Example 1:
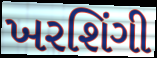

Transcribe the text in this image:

ખરશિંગી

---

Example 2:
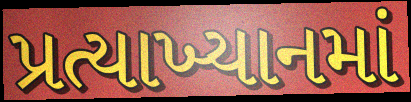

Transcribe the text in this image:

પ્રત્યાખ્યાનમાં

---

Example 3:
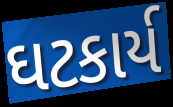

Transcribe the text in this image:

ઘટકાર્ય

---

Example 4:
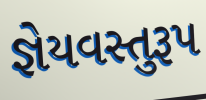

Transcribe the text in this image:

જ્ઞેયવસ્તુરૂપ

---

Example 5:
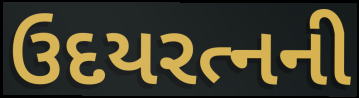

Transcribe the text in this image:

ઉદયરત્નની